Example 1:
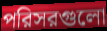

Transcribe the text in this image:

পরিসরগুলো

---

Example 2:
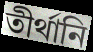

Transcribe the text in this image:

তীর্থানি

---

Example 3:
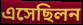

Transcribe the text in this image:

এসেছিলন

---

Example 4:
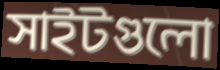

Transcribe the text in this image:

সাইটগুলো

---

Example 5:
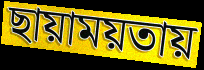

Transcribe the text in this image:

ছায়াময়তায়